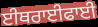
ਈਥਰਾਈਫਾਈ